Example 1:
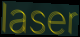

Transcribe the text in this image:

laser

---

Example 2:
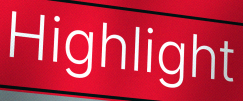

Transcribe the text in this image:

Highlight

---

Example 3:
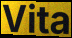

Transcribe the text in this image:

Vita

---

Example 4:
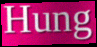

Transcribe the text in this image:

Hung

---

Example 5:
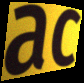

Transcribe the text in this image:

ac